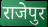
राजेपुर